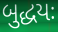
બુદ્ધયઃ